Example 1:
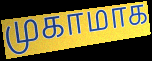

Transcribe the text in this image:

முகாமாக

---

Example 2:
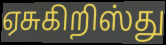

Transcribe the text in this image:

ஏசுகிறிஸ்து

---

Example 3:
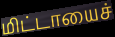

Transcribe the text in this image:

மிட்டாயைச்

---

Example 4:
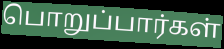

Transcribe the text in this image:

பொறுப்பார்கள்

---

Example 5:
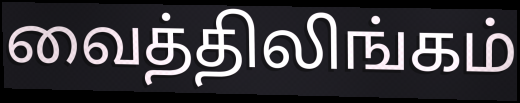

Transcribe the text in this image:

வைத்திலிங்கம்